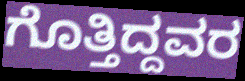
ಗೊತ್ತಿದ್ದವರ